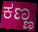
ಕಣ್ಣ